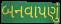
બનવાપણું